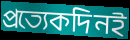
প্রত্যেকদিনই